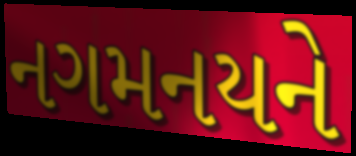
નગમનયને